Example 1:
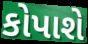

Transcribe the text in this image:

કોપાશે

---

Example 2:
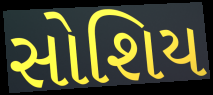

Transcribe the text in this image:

સોશિય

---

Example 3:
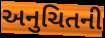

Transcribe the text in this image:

અનુચિતની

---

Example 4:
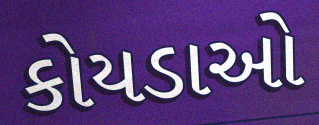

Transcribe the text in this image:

કોયડાઓ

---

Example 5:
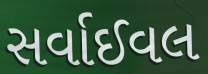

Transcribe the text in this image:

સર્વાઈવલ